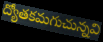
ద్యోతకమగుచున్నవి